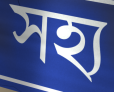
সহ্য